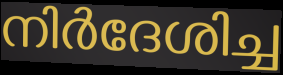
നിർദേശിച്ച